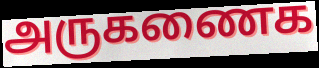
அருகணைக